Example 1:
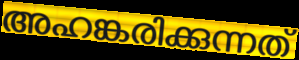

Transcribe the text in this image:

അഹങ്കരിക്കുന്നത്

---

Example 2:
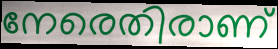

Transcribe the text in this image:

നേരെതിരാണ്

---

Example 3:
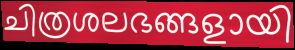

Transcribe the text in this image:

ചിത്രശലഭങ്ങളായി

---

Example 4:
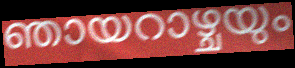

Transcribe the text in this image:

ഞായറാഴ്ചയും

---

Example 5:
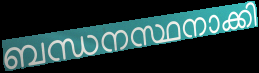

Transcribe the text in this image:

ബന്ധനസ്ഥനാക്കി